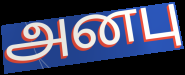
அனபு